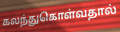
கலந்துகொள்வதால்